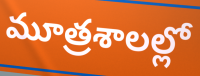
మూత్రశాలల్లో